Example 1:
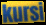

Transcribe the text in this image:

kursi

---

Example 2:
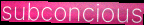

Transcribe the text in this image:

subconcious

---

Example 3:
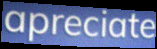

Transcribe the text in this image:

apreciate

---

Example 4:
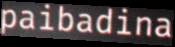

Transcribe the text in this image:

paibadina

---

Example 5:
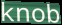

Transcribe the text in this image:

knob